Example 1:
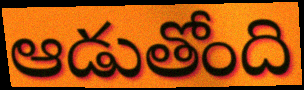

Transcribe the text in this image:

ఆడుతోంది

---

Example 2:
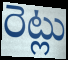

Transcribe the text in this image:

రెట్లు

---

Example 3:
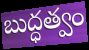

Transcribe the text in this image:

బుద్ధత్వం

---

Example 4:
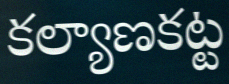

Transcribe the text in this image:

కల్యాణకట్ట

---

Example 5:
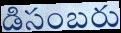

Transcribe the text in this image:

డిసంబరు